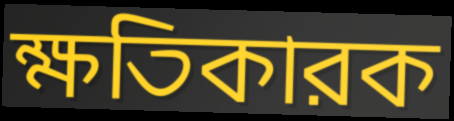
ক্ষতিকারক